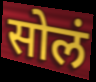
सोलं